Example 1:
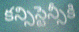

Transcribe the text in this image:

కన్సిస్టెన్సీకి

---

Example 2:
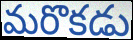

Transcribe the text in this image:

మరొకడు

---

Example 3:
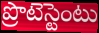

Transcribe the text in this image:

ప్రొటెస్టెంటు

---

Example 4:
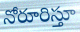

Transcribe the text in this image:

నోరూరిస్తూ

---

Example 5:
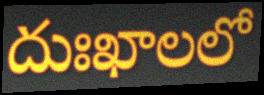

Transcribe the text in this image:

దుఃఖాలలో